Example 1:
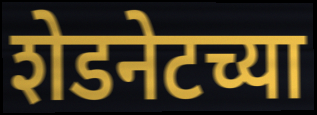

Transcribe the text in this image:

शेडनेटच्या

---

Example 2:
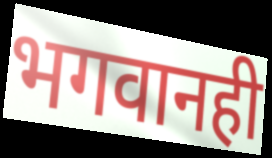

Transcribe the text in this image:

भगवानही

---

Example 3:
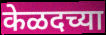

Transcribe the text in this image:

केळदच्या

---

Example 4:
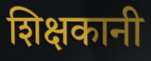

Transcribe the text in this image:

शिक्षकानी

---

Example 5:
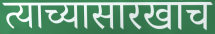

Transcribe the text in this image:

त्याच्यासारखाच